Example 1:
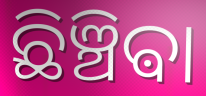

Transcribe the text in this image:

ଛିଞ୍ଚିଵା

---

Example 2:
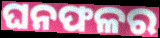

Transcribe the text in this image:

ଘନଫଳର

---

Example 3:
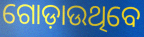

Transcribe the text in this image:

ଗୋଡ଼ାଉଥିବେ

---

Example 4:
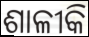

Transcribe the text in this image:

ଶାଳୀକି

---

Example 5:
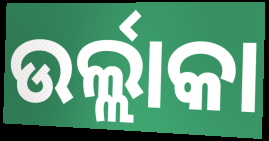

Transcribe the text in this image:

ଉର୍ଲ୍ଲାକା